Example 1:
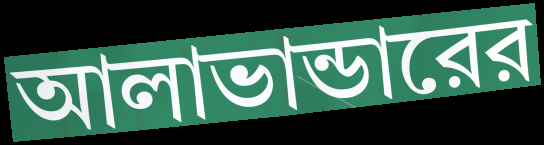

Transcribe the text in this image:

আলাভান্ডারের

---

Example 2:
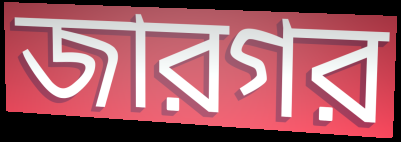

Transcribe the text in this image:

জারগর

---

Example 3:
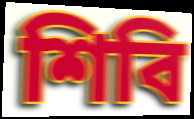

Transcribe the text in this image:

শিবি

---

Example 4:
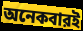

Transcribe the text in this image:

অনেকবারই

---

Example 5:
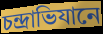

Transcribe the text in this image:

চন্দ্রাভিযানে